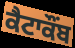
ਕੈਟਾਕੌਂਬ